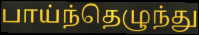
பாய்ந்தெழுந்து